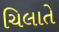
ચિલાતે